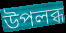
উপলব্ধ